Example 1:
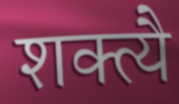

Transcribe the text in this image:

शक्त्यै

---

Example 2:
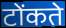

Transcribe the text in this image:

टोंकते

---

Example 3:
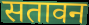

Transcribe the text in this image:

सतावन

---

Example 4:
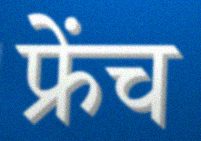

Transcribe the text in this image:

फ्रेंच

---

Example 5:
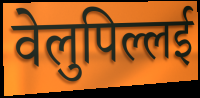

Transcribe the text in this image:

वेलुपिल्लई